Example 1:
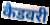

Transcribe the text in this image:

कैडवरी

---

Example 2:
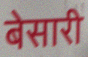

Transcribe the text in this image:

बेसारी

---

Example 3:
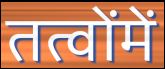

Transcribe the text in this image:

तत्वोंमें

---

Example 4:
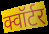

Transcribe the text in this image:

क्वॉर्टर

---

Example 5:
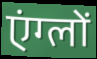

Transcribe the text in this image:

एंग्लों